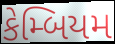
કેમ્બિયમ